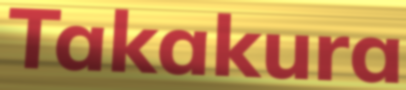
Takakura